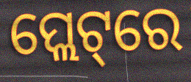
ପ୍ଲେଟ୍‌ରେ